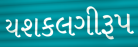
યશકલગીરૂપ